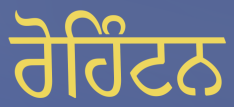
ਰੋਹਿੰਟਨ